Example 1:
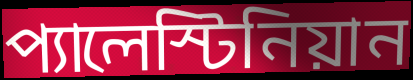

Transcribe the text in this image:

প্যালেস্টিনিয়ান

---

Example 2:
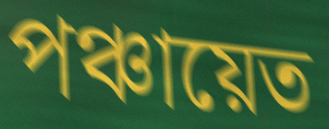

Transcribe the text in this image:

পঞ্চায়েত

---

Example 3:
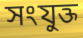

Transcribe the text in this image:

সংযুক্ত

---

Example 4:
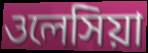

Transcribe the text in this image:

ওলেসিয়া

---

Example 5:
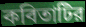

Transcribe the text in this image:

কবিতাটির